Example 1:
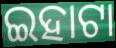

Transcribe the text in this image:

ଇହାଟା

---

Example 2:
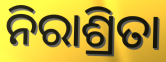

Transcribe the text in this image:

ନିରାଶ୍ରିତା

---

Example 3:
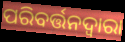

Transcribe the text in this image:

ପରିବର୍ତ୍ତନଦ୍ୱାରା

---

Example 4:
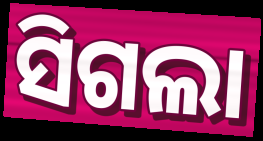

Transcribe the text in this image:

ସିଗଲା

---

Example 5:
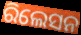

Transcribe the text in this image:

ରିଲେସନ